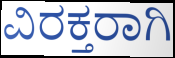
ವಿರಕ್ತರಾಗಿ